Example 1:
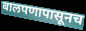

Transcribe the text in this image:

बालपणापासूनच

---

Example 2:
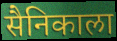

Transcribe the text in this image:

सैनिकाला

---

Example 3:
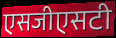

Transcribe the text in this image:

एसजीएसटी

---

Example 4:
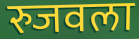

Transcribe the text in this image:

रुजवला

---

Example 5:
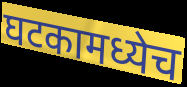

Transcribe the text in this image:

घटकामध्येच